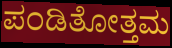
ಪಂಡಿತೋತ್ತಮ